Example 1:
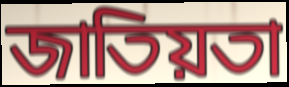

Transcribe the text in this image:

জাতিয়তা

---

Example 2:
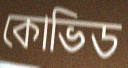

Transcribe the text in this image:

কোভিড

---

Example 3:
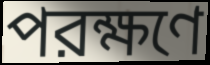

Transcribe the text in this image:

পরক্ষণে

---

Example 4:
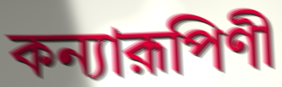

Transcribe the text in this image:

কন্যারূপিণী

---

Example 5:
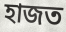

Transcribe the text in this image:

হাজত